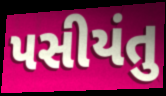
પસીયંતુ